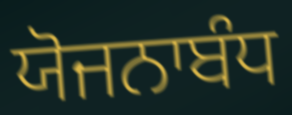
ਯੋਜਨਾਬੰਧ